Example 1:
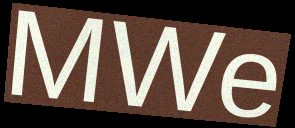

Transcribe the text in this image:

MWe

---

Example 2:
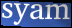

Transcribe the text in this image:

syam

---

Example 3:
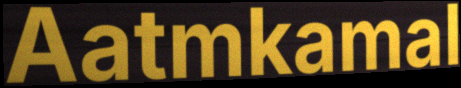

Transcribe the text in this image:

Aatmkamal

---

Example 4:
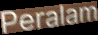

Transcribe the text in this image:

Peralam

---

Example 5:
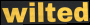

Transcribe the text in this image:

wilted